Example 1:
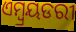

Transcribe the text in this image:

ଏମ୍ବ୍ରୟଡରୀ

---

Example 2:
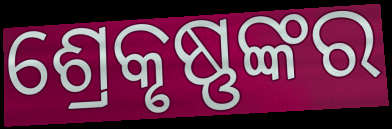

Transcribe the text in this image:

ଶ୍ରେକୃଷ୍ଣଙ୍କର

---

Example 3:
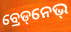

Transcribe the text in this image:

ବ୍ରେଡ୍‌ନେଭ୍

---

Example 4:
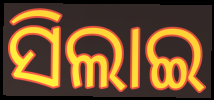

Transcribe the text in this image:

ସିଲାଇ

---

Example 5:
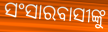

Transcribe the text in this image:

ସଂସାରବାସୀଙ୍କୁ